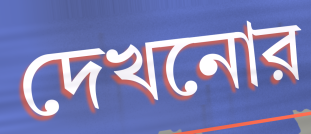
দেখনোর